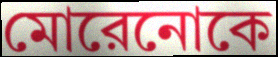
মোরেনোকে